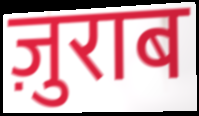
ज़ुराब